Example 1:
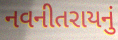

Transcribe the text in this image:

નવનીતરાયનું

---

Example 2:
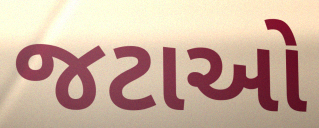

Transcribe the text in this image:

જટાઓ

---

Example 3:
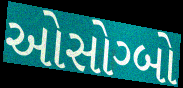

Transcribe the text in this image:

ઓસોગ્બો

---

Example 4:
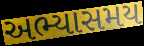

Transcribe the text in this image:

અભ્યાસમય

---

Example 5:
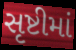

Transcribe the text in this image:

સૃષ્ટીમાં